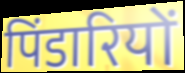
पिंडारियों